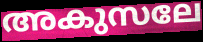
അകുസലേ